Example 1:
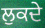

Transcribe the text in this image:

ਲੁਕਦੇ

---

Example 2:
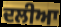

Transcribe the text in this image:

ਦਲੀਆ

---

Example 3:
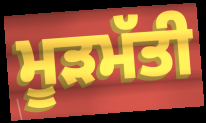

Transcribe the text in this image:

ਮੂੜਮੱਤੀ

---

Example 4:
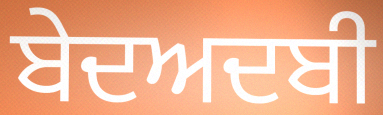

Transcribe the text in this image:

ਬੇਦਅਦਬੀ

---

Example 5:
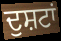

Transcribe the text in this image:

ਦੁਸ਼ਟਾਂ